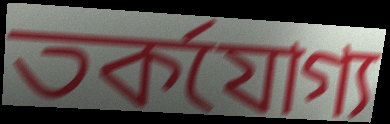
তর্কযোগ্য